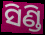
ସିଣ୍ଡି